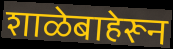
शाळेबाहेरून